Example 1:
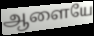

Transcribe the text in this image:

ஆளையே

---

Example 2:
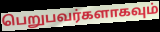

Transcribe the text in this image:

பெறுபவர்களாகவும்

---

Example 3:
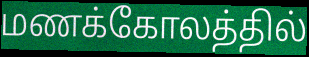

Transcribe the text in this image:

மணக்கோலத்தில்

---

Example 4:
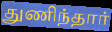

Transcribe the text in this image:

துணிந்தார்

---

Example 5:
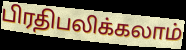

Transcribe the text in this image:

பிரதிபலிக்கலாம்